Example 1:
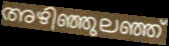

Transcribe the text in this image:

അഴിഞ്ഞുലഞ്ഞ്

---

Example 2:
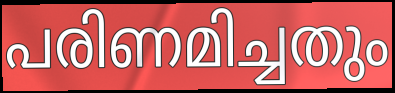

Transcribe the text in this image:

പരിണമിച്ചതും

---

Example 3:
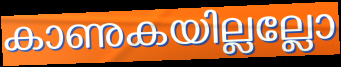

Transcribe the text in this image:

കാണുകയില്ലല്ലോ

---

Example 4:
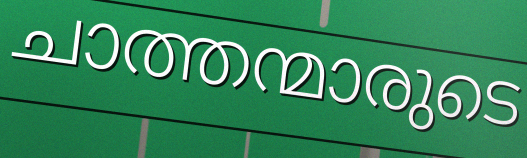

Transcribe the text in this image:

ചാത്തന്മാരുടെ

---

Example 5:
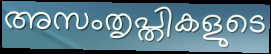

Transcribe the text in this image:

അസംതൃപ്തികളുടെ